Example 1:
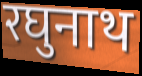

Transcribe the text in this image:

रघुनाथ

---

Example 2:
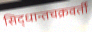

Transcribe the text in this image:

सिद्धान्तचक्रवर्ती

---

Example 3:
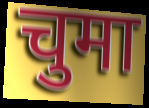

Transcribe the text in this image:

चुमा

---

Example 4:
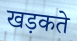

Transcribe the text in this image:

खड़कते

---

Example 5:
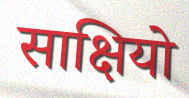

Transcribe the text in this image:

साक्षियो